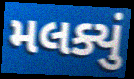
મલક્યું